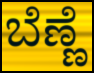
ಬೆಣ್ಣೆ